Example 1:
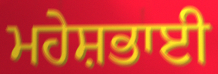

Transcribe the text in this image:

ਮਹੇਸ਼ਭਾਈ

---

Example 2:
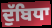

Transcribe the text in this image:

ਦੁੱਬਿਧਾ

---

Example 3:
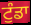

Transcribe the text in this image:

ਟੁੰਡਾ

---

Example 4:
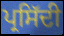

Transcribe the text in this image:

ਪ੍ਰਸਿੱਦੀ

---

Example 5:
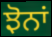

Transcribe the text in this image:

ਝੋਨਾਂ